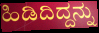
ಹಿಡಿದಿದ್ದನ್ನು